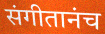
संगीतानंच